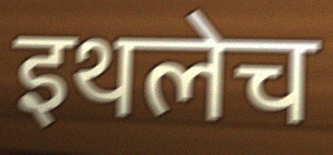
इथलेच